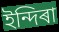
ইন্দিৰা